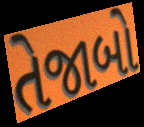
તેજાબો